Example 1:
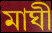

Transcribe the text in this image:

মাঘী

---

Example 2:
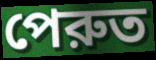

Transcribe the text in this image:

পেরুত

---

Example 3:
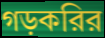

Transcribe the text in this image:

গড়করির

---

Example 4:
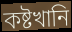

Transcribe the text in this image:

কষ্টখানি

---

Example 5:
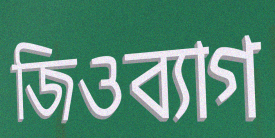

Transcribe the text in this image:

জিওব্যাগ